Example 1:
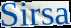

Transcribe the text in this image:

Sirsa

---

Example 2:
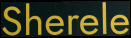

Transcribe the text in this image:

Sherele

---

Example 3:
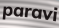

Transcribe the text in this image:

paravi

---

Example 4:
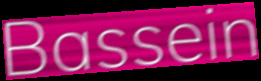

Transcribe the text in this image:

Bassein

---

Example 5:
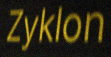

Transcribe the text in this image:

Zyklon